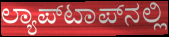
ಲ್ಯಾಪ್‌ಟಾಪ್‌ನಲ್ಲಿ